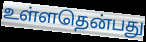
உள்ளதென்பது